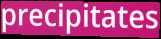
precipitates